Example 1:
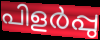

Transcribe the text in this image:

പിളർപ്പു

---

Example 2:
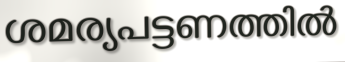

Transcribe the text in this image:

ശമര്യപട്ടണത്തിൽ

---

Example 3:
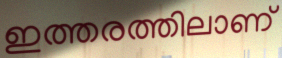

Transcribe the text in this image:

ഇത്തരത്തിലാണ്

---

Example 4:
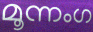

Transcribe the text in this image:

മൂന്നംഗ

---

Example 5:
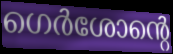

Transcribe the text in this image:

ഗെർശോന്റെ